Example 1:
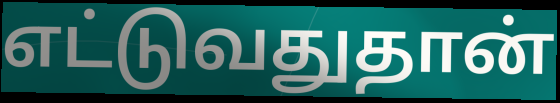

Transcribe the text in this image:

எட்டுவதுதான்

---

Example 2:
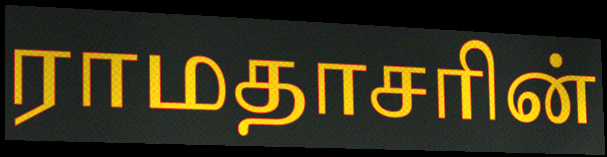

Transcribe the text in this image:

ராமதாசரின்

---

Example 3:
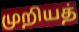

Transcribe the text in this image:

முறியத்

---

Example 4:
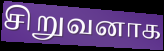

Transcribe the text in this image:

சிறுவனாக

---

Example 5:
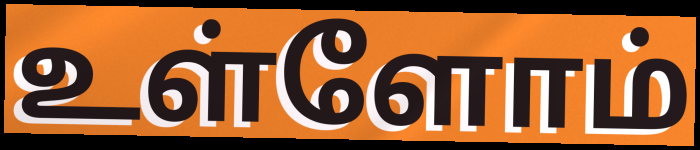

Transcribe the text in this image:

உள்ளோம்